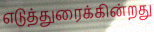
எடுத்துரைக்கின்றது